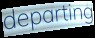
departing